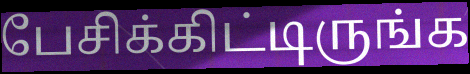
பேசிக்கிட்டிருங்க